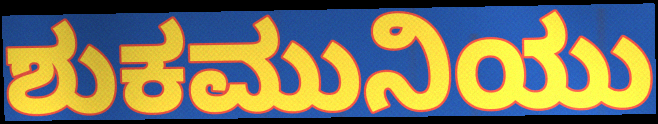
ಶುಕಮುನಿಯು